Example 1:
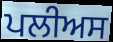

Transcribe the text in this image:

ਪਲੀਅਸ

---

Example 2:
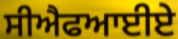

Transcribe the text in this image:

ਸੀਐਫਆਈਏ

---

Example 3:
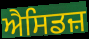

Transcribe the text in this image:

ਐਸਿਡਜ਼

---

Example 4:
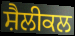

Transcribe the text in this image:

ਸ਼ੈਲੀਕਲ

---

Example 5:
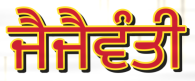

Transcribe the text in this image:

ਜੈਜੈਵੰਤੀ